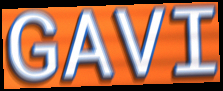
GAVI